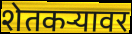
शेतकऱ्यावर